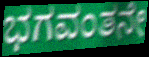
ಭಗವಂತನೇ